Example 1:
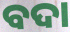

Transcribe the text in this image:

ବଦା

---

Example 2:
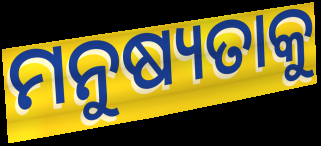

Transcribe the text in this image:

ମନୁଷ୍ୟତାକୁ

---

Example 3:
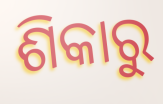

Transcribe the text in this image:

ଶିକାରୁ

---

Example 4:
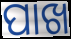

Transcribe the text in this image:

ପାଖ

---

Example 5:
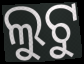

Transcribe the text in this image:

ଲୁଟୁ